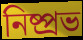
নিষ্প্রভ